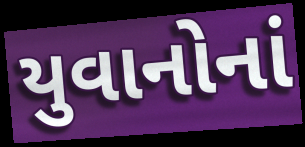
યુવાનોનાં